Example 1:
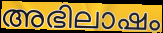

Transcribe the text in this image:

അഭിലാഷം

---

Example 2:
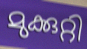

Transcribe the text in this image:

മുക്കുറ്റി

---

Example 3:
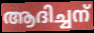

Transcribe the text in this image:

ആദിച്ചന്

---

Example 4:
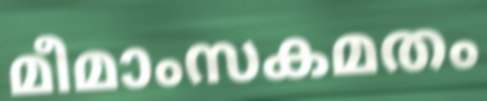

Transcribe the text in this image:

മീമാംസകമതം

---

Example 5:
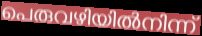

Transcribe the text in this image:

പെരുവഴിയിൽനിന്ന്